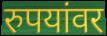
रुपयांवर